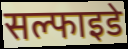
सल्फाइडे